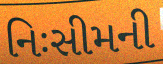
નિઃસીમની